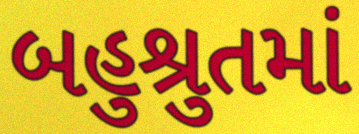
બહુશ્રુતમાં